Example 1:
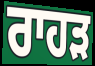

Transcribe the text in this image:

ਰਾਹੜ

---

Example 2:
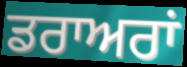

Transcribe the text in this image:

ਡਰਾਅਰਾਂ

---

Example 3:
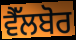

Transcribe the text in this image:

ਵੈੱਲਬੋਰ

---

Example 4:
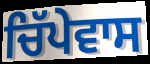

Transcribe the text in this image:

ਚਿੱਪੇਵਾਸ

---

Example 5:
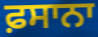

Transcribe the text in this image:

ਫ਼ਸਾਨਾ